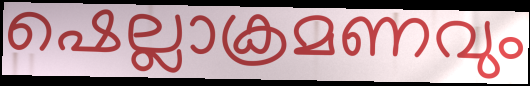
ഷെല്ലാക്രമണവും